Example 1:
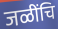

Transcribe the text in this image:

जळींचि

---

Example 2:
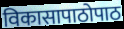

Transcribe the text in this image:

विकासापाठोपाठ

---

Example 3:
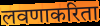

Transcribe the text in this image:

लवणाकरिता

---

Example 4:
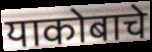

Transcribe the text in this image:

याकोबाचे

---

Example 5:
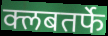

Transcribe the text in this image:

क्लबतर्फे